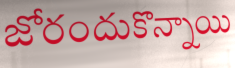
జోరందుకొన్నాయి